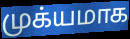
முக்யமாக